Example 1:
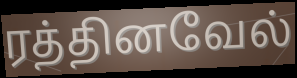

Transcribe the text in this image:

ரத்தினவேல்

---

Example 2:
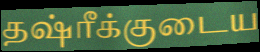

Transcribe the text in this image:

தஷ்ரீக்குடைய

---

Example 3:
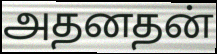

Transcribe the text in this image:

அதனதன்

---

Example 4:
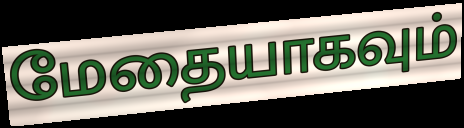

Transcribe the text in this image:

மேதையாகவும்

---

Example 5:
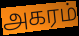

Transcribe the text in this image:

அகரம்